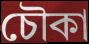
চৌকা